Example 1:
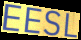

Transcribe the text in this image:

EESL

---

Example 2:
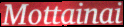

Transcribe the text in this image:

Mottainai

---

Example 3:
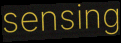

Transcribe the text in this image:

sensing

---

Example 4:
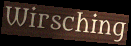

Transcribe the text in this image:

Wirsching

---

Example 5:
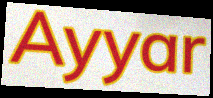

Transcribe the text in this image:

Ayyar